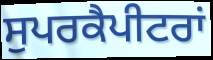
ਸੁਪਰਕੈਪੀਟਰਾਂ